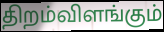
திறம்விளங்கும்